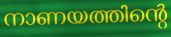
നാണയത്തിന്റെ